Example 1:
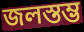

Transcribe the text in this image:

জলস্তম্ভ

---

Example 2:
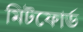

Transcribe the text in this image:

মিটফোর্ড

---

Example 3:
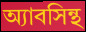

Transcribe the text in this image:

অ্যাবসিন্থ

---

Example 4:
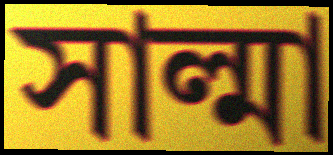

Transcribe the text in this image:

সাল্মা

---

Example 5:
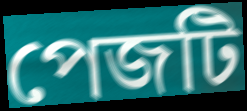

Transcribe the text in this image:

পেজটি